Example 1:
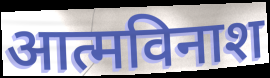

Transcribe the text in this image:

आत्मविनाश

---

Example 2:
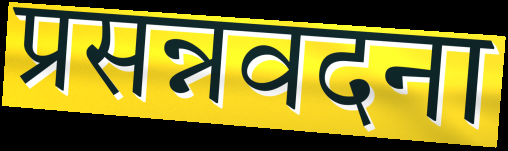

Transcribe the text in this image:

प्रसन्नवदना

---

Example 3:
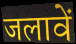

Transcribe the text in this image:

जलावें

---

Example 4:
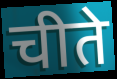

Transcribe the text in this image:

चीते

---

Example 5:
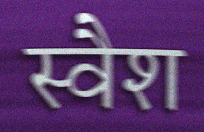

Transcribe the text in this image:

स्वैश